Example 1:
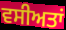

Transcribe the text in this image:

ਵਸੀਅਤਾਂ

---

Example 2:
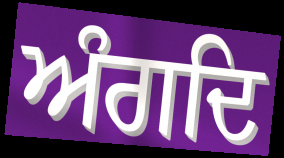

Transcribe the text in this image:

ਅੰਗਦਿ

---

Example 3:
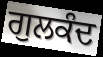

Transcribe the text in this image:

ਗੁਲਕੰਦ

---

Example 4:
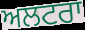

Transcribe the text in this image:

ਅਲਟਰਾ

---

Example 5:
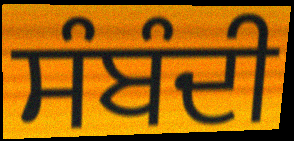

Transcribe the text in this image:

ਸੰਬੰਦੀ